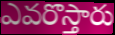
ఎవరొస్తారు